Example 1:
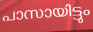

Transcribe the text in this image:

പാസായിട്ടും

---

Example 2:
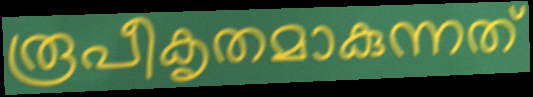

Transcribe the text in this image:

രൂപീകൃതമാകുന്നത്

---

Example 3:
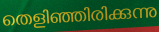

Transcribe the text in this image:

തെളിഞ്ഞിരിക്കുന്നു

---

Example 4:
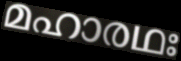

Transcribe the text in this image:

മഹാരഥഃ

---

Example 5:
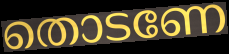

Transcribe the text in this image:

തൊടണേ